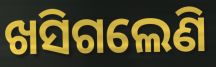
ଖସିଗଲେଣି